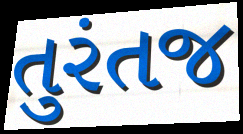
તુરંતજ